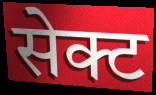
सेक्ट